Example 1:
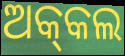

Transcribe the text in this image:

ଅକ୍‌କଲ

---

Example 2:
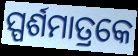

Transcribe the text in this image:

ସ୍ପର୍ଶମାତ୍ରକେ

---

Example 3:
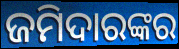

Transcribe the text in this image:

ଜମିଦାରଙ୍କର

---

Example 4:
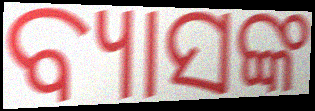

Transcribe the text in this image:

ବ୍ୟାସଙ୍କ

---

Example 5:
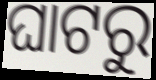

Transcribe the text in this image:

ଘାଟରୁ